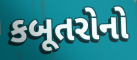
કબૂતરોનો